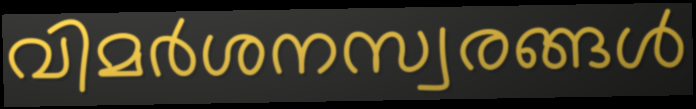
വിമർശനസ്വരങ്ങൾ